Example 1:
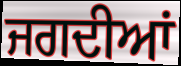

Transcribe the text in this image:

ਜਗਦੀਆਂ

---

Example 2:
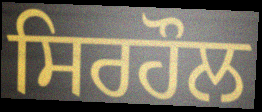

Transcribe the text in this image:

ਸਿਰਹੌਲ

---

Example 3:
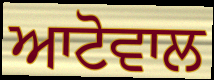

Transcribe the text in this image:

ਆਟੋਵਾਲ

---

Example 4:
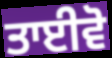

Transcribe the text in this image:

ਤਾਈਵੋ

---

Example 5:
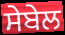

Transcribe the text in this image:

ਸੇਬੇਲ